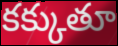
కక్కుతూ